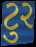
ટુર